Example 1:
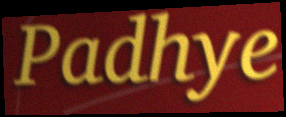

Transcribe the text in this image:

Padhye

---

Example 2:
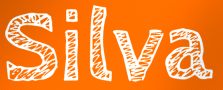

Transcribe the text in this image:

Silva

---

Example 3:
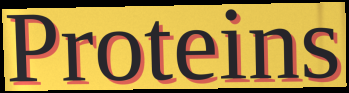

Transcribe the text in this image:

Proteins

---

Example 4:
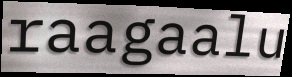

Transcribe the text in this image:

raagaalu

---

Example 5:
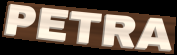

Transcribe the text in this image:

PETRA